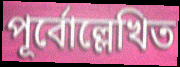
পূর্বোল্লেখিত